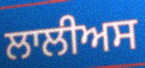
ਲਾਲੀਅਸ